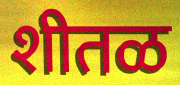
शीतळ